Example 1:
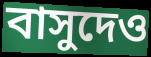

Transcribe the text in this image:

বাসুদেও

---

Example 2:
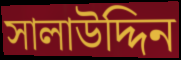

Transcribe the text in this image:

সালাউদ্দিন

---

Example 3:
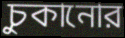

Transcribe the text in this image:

চুকানোর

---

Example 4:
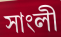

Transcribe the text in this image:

সাংলী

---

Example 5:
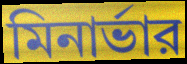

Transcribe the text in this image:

মিনার্ভার